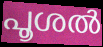
പൂശൽ